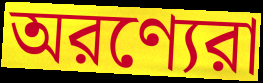
অরণ্যেরা